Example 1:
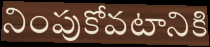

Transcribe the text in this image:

నింపుకోవటానికి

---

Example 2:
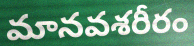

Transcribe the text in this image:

మానవశరీరం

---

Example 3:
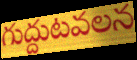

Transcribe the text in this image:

గుద్దుటవలన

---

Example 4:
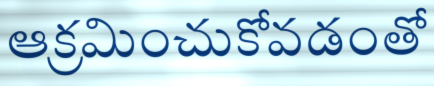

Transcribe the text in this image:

ఆక్రమించుకోవడంతో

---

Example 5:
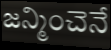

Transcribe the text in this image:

జన్మించెనే